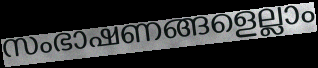
സംഭാഷണങ്ങളെല്ലാം